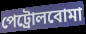
পেট্রোলবোমা